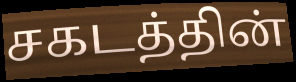
சகடத்தின்